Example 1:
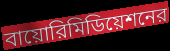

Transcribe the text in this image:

বায়োরিমিডিয়েশনের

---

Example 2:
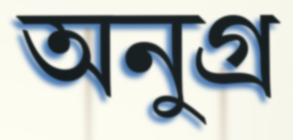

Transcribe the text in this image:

অনুগ্র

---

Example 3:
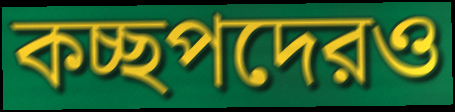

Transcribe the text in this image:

কচ্ছপদেরও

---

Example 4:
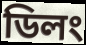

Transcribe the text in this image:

ডিলং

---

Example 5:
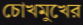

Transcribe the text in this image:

চোখমুখের